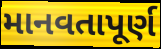
માનવતાપૂર્ણ